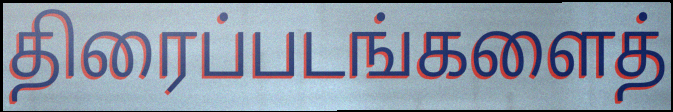
திரைப்படங்களைத்